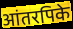
आंतरपिके